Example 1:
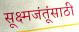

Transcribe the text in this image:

सूक्ष्मजंतूंसाठी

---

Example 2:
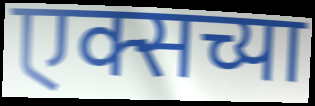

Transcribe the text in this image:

एक्सच्या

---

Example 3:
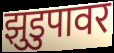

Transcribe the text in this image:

झुडुपावर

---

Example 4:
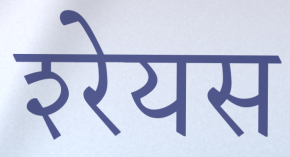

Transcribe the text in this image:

श्रेयस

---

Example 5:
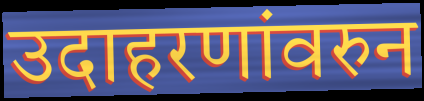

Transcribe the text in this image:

उदाहरणांवरुन